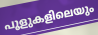
പൂളുകളിലെയും